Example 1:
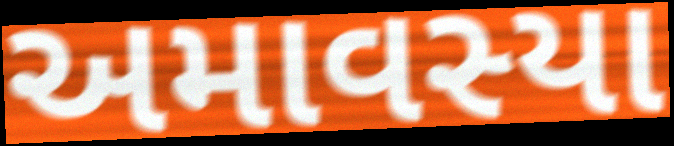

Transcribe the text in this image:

અમાવસ્યા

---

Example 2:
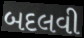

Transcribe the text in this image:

બદલવી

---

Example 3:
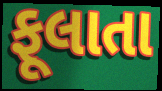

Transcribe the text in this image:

ફૂલાતા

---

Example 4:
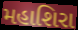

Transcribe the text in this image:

મહાશિરા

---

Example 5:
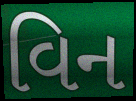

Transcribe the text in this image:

વિન